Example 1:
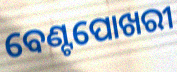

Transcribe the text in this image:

ବେଣ୍ଟପୋଖରୀ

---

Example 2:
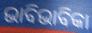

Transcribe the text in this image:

ଭାବିଭାବିକା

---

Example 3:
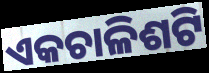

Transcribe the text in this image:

ଏକଚାଳିଶଟି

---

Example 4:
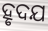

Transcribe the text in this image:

ହୃଦଯ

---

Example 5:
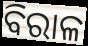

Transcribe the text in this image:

ବିରାଳ